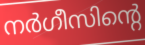
നർഗീസിന്റെ